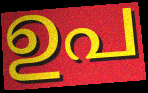
ഉപ